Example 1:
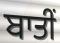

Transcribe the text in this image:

ਬਾਤੀਂ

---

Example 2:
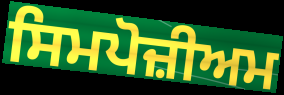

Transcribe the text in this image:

ਸਿਮਪੋਜ਼ੀਅਮ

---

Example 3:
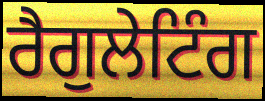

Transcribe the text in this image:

ਰੈਗੁਲੇਟਿੰਗ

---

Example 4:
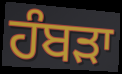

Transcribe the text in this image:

ਹੰਬਡ਼ਾ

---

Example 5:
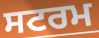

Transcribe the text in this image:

ਸਟਰਮ